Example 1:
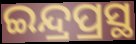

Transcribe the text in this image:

ଇନ୍ଦ୍ରପ୍ରସ୍ଥ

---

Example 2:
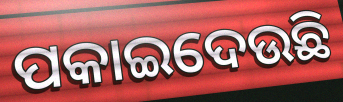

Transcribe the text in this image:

ପକାଇଦେଉଛି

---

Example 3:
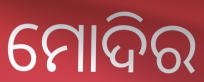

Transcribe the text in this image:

ମୋଦିର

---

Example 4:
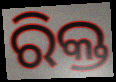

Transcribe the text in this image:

ରିକ୍ତ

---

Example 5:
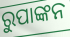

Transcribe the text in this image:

ରୁପାଙ୍କନ